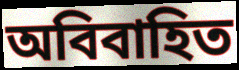
অবিবাহিত